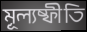
মূল্যষ্ফীতি